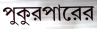
পুকুরপারের